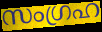
സംഗ്രഹ